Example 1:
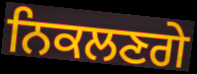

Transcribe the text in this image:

ਨਿਕਲਣਗੇ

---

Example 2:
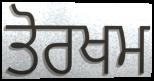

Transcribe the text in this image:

ਤੋਰਖਮ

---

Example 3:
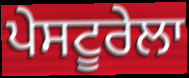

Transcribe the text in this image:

ਪੇਸਟੂਰੇਲਾ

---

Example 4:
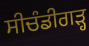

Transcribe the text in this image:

ਸੀਚੰਡੀਗੜ੍ਹ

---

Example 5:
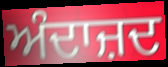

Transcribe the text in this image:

ਅੰਦਾਜ਼ਦ